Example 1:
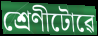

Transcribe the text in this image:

শ্ৰেণীটোৱে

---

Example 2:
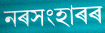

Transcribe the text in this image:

নৰসংহাৰৰ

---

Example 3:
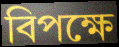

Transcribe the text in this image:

বিপক্ষে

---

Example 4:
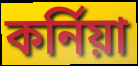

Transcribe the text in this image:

কৰ্নিয়া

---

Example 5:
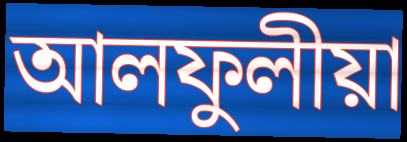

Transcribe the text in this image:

আলফুলীয়া